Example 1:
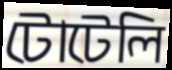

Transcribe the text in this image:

টোটেলি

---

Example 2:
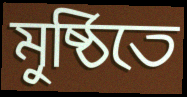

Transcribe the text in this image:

মুষ্ঠিতে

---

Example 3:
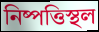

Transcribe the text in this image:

নিষ্পত্তিস্থল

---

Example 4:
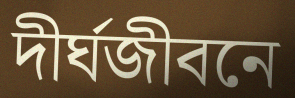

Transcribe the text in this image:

দীর্ঘজীবনে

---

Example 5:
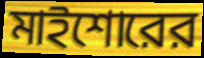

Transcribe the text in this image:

মাইশোরের